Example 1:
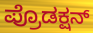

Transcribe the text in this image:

ಪ್ರೊಡಕ್ಷನ್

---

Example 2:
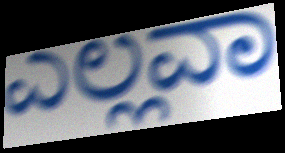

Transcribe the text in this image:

ಎಲ್ಲವಾ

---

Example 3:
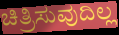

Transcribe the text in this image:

ಚಿತ್ರಿಸುವುದಿಲ್ಲ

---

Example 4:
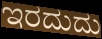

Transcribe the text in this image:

ಇರದುದು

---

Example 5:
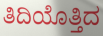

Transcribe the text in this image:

ತಿದಿಯೊತ್ತಿದ